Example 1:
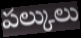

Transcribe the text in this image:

పల్కులు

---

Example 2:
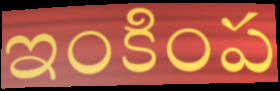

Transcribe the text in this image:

ఇంకింప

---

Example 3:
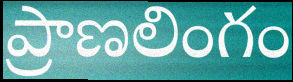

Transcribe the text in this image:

ప్రాణలింగం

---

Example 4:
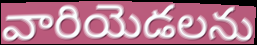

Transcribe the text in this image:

వారియెడలను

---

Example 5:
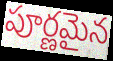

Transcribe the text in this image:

పూర్ణమైన